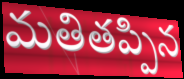
మతితప్పిన